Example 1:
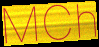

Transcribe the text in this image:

MCh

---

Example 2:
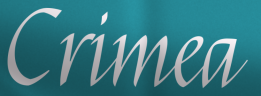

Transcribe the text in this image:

Crimea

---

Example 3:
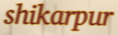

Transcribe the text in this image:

shikarpur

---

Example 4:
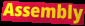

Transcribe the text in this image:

Assembly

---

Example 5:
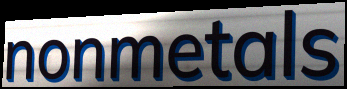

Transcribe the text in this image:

nonmetals